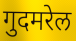
गुदमरेल